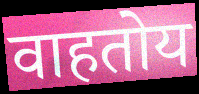
वाहतोय